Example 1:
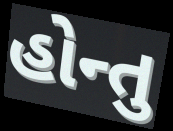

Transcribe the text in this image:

હોન્તુ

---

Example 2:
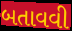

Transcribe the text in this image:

બતાવવી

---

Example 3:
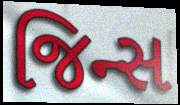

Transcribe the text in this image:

જિન્સ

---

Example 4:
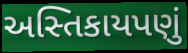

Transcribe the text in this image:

અસ્તિકાયપણું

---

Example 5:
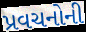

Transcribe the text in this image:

પ્રવચનોની